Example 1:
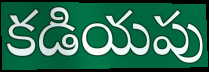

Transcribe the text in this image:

కడియపు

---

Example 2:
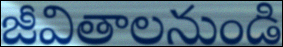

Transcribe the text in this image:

జీవితాలనుండి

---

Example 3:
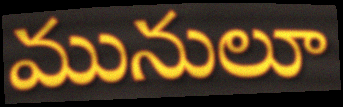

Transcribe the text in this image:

మునులూ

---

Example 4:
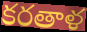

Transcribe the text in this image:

కరతాళ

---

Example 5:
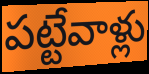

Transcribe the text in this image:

పట్టేవాళ్లు